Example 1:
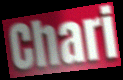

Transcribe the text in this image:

Chari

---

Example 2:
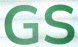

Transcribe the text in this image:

GS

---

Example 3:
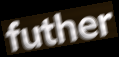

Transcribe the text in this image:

futher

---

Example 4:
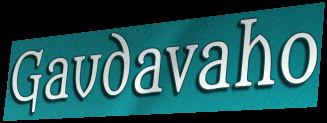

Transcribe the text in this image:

Gaudavaho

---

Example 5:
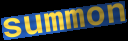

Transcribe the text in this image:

summon